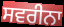
ਸਵਰੀਨਾ